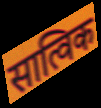
सात्विक